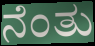
ನೆಂತು